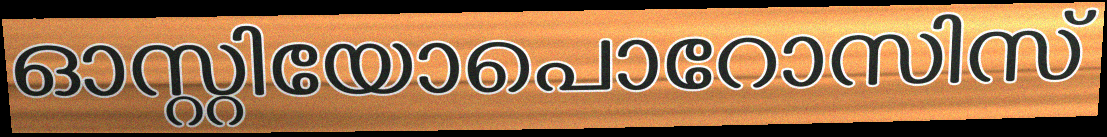
ഓസ്റ്റിയോപൊറോസിസ്